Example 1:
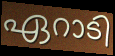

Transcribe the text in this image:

ഏറാടി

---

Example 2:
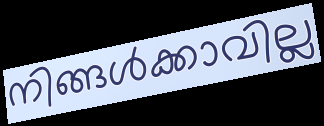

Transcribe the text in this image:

നിങ്ങൾക്കാവില്ല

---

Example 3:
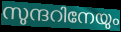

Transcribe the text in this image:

സുന്ദറിനേയും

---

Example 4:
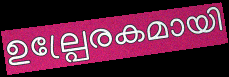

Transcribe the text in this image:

ഉല്പ്രേരകമായി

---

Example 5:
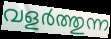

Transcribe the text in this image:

വളർത്തുന്ന